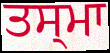
ਤਸ੍ਮਾ